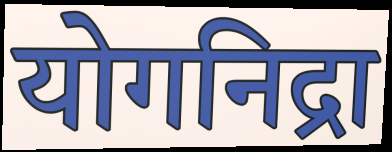
योगनिद्रा